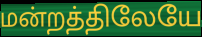
மன்றத்திலேயே